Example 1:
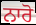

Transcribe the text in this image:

ਨਾਰੋ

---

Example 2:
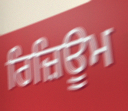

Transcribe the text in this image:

ਰਿਜ਼ਿਊਮ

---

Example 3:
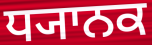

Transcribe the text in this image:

ਧ੍ਯਾਨਕ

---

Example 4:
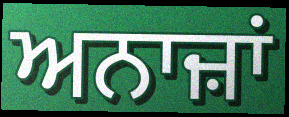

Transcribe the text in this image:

ਅਨਾਜ਼ਾਂ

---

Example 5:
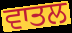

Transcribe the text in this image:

ਵਾਤਲ